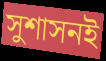
সুশাসনই